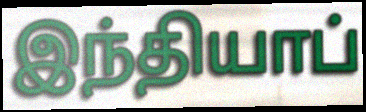
இந்தியாப்